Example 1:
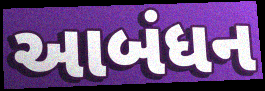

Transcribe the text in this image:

આબંધન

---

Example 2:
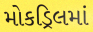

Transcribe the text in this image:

મોકડ્રિલમાં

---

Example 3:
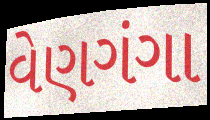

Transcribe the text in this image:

વેણગંગા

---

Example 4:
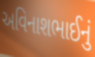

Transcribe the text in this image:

અવિનાશભાઈનું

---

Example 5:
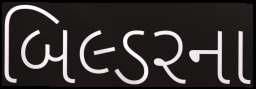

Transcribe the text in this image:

બિલ્ડરના